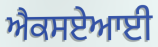
ਐਕਸਏਆਈ